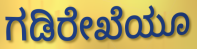
ಗಡಿರೇಖೆಯೂ